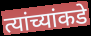
त्यांच्यांकडे